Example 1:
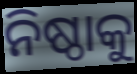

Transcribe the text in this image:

ନିଷ୍ଠାକୁ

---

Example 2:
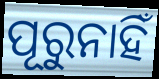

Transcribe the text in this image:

ପୂରୁନାହିଁ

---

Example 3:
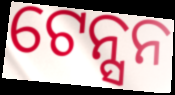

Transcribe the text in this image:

ଟେନ୍ସନ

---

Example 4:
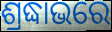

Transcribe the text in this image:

ଶ୍ରଦ୍ଧାଭରେ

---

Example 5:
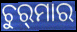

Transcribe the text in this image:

ଚୁର୍‍ମାର